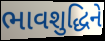
ભાવશુદ્ધિને